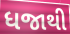
ધજાથી